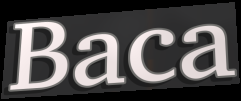
Baca